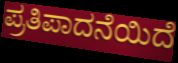
ಪ್ರತಿಪಾದನೆಯಿದೆ